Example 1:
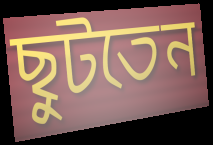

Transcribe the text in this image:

ছুটতেন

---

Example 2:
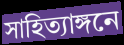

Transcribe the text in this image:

সাহিত্যাঙ্গনে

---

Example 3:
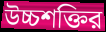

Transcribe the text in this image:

উচ্চশক্তির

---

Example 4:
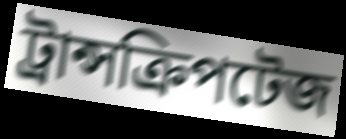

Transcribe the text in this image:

ট্রান্সক্রিপটেজ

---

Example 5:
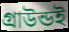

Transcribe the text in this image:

গ্রাউন্ডই